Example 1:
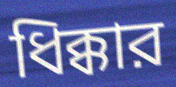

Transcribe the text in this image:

ধিক্কার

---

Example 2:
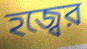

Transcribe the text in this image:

হজ্বের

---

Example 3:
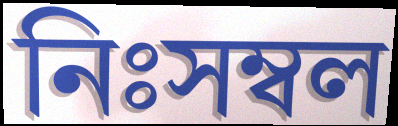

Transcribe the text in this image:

নিঃসম্বল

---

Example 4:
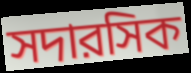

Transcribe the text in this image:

সদারসিক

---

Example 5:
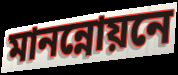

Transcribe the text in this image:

মানন্নোয়নে